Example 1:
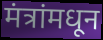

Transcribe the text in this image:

मंत्रांमधून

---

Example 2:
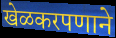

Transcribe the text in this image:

खेळकरपणाने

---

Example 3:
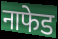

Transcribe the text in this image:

नाफेड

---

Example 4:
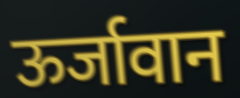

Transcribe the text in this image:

ऊर्जावान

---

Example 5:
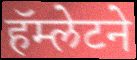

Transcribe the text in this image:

हॅम्लेटने